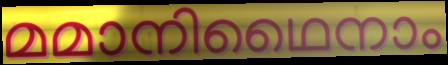
മമാനിഥൈനാം